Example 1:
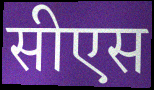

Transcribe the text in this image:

सीएस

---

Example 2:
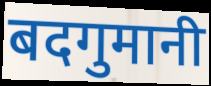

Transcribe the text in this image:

बदगुमानी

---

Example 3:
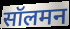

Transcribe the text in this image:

सॉलमन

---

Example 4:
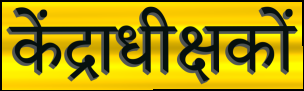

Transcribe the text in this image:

केंद्राधीक्षकों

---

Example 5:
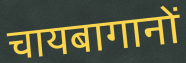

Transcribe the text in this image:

चायबागानों